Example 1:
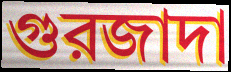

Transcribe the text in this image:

গুরজাদা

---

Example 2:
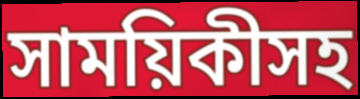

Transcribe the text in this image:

সাময়িকীসহ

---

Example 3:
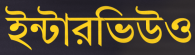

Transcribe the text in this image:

ইন্টারভিউও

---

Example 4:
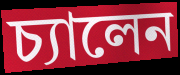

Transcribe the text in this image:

চ্যালেন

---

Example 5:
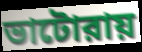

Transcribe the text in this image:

ভাটোরায়